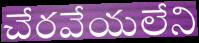
చేరవేయలేని